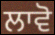
ਲਾਵੋ